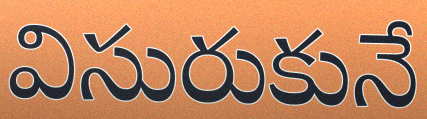
విసురుకునే